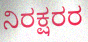
ನಿರಕ್ಷರರ